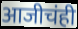
आजीचंही